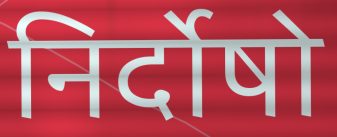
निर्दोषो